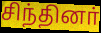
சிந்தினர்